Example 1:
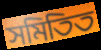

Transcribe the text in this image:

সমিতিত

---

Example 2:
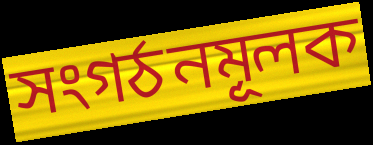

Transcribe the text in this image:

সংগঠনমূলক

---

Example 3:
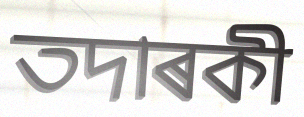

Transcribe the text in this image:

তদাৰকী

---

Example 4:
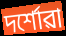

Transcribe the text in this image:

দৰ্শোৱা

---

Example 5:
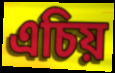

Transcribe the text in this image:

এচিয়